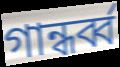
গান্ধর্ব্ব